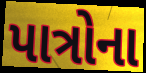
પાત્રોના